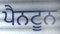
ਪੈਨਟੂਨ